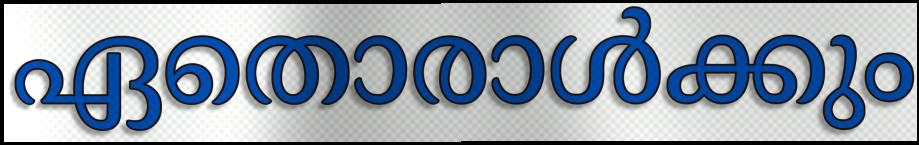
ഏതൊരാൾക്കും